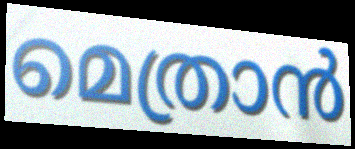
മെത്രാൻ